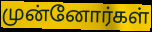
முன்னோர்கள்